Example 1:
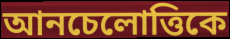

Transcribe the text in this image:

আনচেলোত্তিকে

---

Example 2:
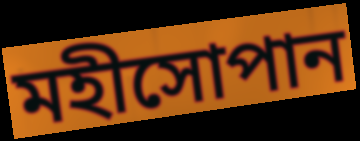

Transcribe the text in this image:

মহীসোপান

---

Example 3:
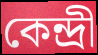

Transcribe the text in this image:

কেন্দ্রী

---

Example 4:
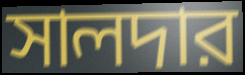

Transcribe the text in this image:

সালদার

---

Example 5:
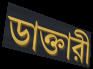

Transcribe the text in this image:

ডাক্তারী